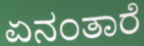
ಏನಂತಾರೆ